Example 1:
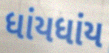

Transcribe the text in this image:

ધાંયધાંય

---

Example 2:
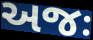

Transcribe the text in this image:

અજઃ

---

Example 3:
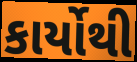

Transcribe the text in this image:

કાર્યોથી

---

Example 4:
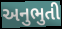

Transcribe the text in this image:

અનુભુતી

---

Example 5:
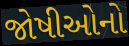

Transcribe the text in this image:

જોષીઓનો